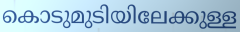
കൊടുമുടിയിലേക്കുള്ള